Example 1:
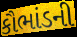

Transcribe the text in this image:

કૌભાંડની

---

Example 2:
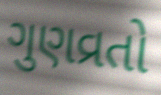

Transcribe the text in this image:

ગુણવ્રતો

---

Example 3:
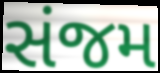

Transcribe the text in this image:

સંજમ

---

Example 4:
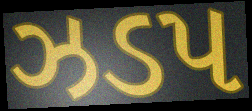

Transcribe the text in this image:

ઝડપ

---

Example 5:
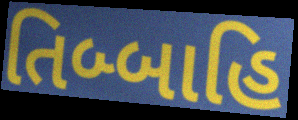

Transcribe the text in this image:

તિબ્બાહિ